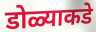
डोळ्याकडे